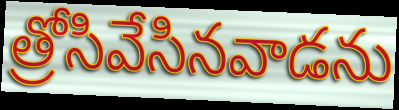
త్రోసివేసినవాడను